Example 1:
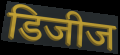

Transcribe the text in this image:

डिजीज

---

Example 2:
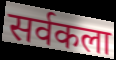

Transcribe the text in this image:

सर्वकला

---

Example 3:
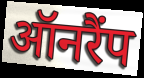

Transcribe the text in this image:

ऑनरैंप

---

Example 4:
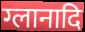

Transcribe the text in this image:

ग्लानादि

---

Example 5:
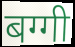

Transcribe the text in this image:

बग्गी